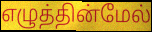
எழுத்தின்மேல்